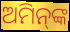
ଅମିନ୍‌ଙ୍କ